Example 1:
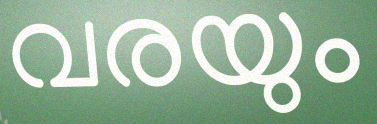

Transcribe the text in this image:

വരയും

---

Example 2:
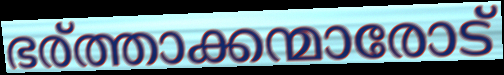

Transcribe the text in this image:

ഭര്ത്താക്കന്മാരോട്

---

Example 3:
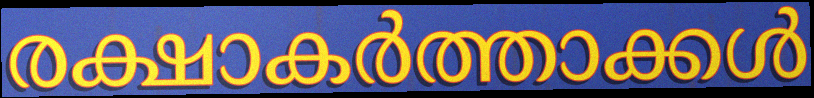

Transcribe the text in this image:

രക്ഷാകർത്താക്കൾ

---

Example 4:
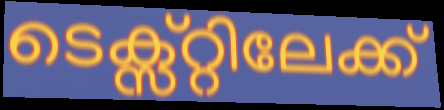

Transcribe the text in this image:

ടെക്സ്റ്റിലേക്ക്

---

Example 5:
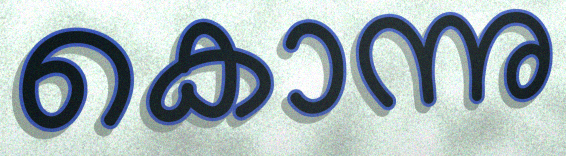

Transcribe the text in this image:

കൊന്നു